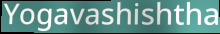
Yogavashishtha